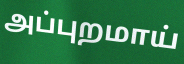
அப்புறமாய்